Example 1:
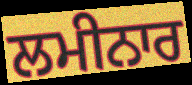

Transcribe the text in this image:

ਲਮੀਨਾਰ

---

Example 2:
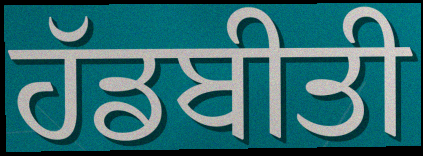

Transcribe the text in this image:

ਹੱਡਬੀਤੀ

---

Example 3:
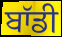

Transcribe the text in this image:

ਬਾੱਡੀ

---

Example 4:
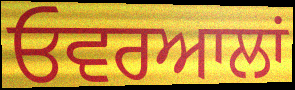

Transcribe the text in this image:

ਓਵਰਆਲਾਂ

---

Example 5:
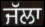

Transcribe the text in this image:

ਜੱਲਾ